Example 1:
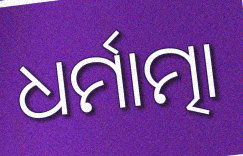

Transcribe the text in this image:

ଧର୍ମାତ୍ମା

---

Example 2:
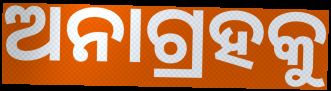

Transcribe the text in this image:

ଅନାଗ୍ରହକୁ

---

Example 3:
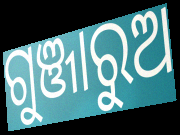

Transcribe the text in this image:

ଗୁଞ୍ଜାରୁଅ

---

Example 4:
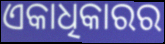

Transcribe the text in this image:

ଏକାଧିକାରର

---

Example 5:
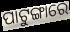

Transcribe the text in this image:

ପାଟୁଙ୍ଗାରେ